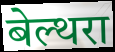
बेल्थरा